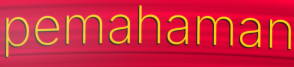
pemahaman